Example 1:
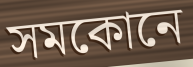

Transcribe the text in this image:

সমকোনে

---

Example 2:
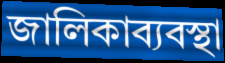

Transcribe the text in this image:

জালিকাব্যবস্থা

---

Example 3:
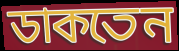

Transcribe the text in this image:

ডাকতেন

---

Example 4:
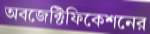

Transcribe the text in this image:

অবজেক্টিফিকেশনের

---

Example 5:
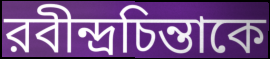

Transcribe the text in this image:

রবীন্দ্রচিন্তাকে